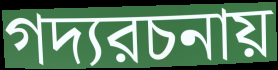
গদ্যরচনায়